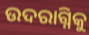
ଉଦରାଗ୍ନିକୁ